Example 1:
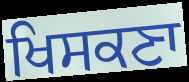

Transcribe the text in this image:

ਖਿਸਕਣਾ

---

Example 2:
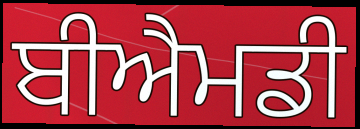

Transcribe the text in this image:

ਬੀਐਮਡੀ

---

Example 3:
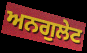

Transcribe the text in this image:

ਅਨਗੁਲੇਟ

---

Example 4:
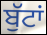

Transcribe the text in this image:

ਬੁੱਟਾਂ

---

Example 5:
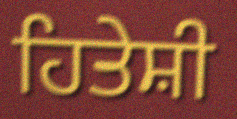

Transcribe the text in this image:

ਹਿਤੇਸ਼ੀ